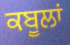
ਕਬੂਲਾਂ